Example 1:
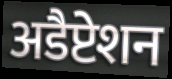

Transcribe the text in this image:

अडैप्टेशन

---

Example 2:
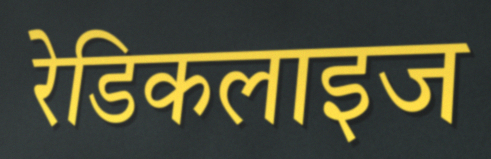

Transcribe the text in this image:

रेडिकलाइज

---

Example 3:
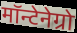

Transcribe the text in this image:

मॉन्टेनेग्रो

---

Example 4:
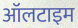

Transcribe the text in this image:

ऑलटाइम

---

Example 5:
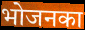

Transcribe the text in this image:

भोजनका